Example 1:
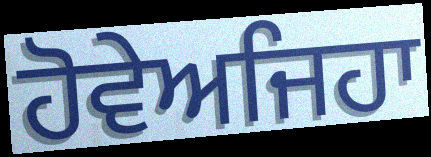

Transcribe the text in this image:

ਹੋਵੇਅਜਿਹਾ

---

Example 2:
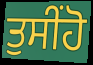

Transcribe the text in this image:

ਤੁਸੀਂਹੋ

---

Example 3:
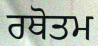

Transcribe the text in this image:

ਰਥੋਤਮ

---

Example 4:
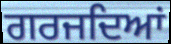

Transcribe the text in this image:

ਗਰਜਦਿਆਂ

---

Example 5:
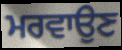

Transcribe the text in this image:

ਮਰਵਾਉਣ